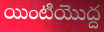
యింటియొద్ద